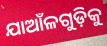
ଯାଆଁଳଗୁଡ଼ିକୁ